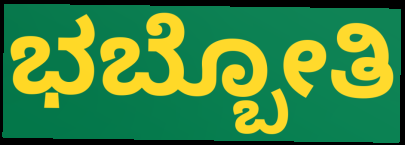
ಭಬ್ಬೋತಿ